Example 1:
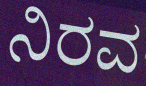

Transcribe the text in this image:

ನಿರವ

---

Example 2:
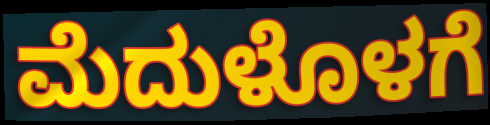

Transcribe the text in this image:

ಮೆದುಳೊಳಗೆ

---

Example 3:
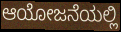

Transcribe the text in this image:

ಆಯೋಜನೆಯಲ್ಲಿ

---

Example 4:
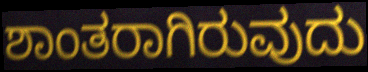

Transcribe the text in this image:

ಶಾಂತರಾಗಿರುವುದು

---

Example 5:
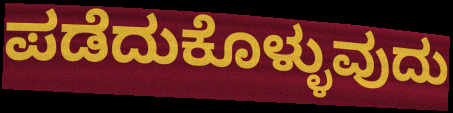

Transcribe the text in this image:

ಪಡೆದುಕೊಳ್ಳುವುದು